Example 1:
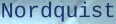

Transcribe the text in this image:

Nordquist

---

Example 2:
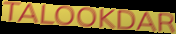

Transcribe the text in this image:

TALOOKDAR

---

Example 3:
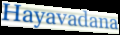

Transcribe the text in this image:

Hayavadana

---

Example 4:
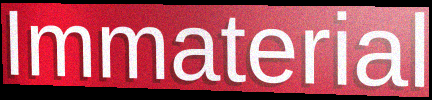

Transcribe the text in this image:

Immaterial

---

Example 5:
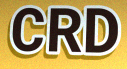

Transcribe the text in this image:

CRD